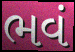
ભવં